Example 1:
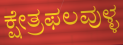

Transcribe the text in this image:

ಕ್ಷೇತ್ರಫಲವುಳ್ಳ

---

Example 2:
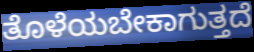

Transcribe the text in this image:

ತೊಳೆಯಬೇಕಾಗುತ್ತದೆ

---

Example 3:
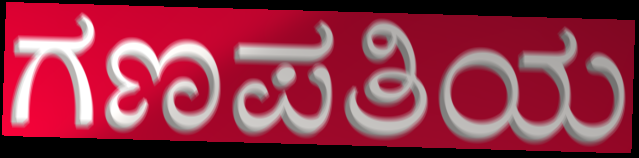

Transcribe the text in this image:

ಗಣಪತಿಯ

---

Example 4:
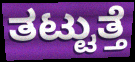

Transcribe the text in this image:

ತಟ್ಟುತ್ತೆ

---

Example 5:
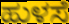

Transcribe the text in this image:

ಹುಳಸೆ